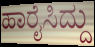
ಹಾರೈಸಿದ್ದು